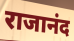
राजानंद